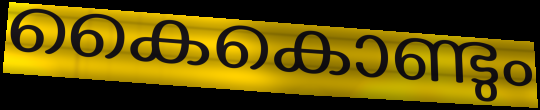
കൈകൊണ്ടും